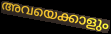
അവയെക്കാളും